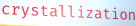
crystallization